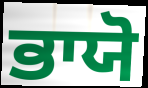
ਭਾਯੋ